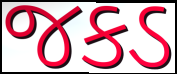
જકડ